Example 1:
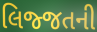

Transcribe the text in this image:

લિજ્જતની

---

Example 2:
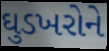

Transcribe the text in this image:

ઘુડખરોને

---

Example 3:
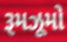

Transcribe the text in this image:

રૂમઝૂમો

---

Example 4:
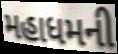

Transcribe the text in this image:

મહાધમની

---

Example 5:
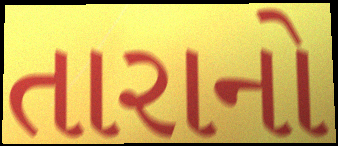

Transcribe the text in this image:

તારાનો